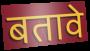
बतावे